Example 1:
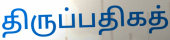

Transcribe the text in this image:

திருப்பதிகத்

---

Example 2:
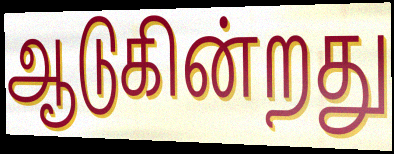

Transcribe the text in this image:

ஆடுகின்றது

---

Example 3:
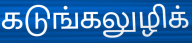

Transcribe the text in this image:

கடுங்கலுழிக்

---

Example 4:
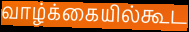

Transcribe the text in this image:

வாழ்க்கையில்கூட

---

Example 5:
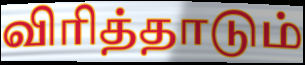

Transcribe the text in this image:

விரித்தாடும்